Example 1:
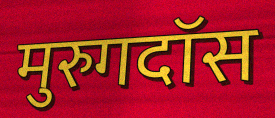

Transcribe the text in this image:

मुरुगदॉस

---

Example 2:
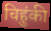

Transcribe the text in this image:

चिहुंकी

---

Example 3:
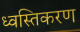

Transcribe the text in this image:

ध्वस्तिकरण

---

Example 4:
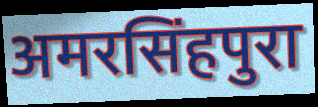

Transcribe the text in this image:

अमरसिंहपुरा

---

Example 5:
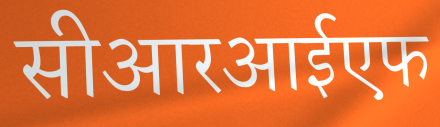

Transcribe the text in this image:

सीआरआईएफ